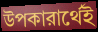
উপকারার্থেই